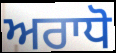
ਅਰਾਧੋ